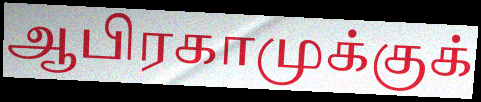
ஆபிரகாமுக்குக்